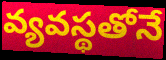
వ్యవస్థతోనే